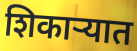
शिकाऱ्यात